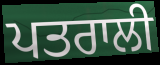
ਪਤਰਾਲੀ